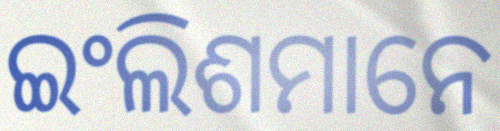
ଇଂଲିଶମାନେ